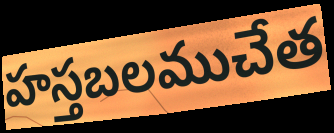
హస్తబలముచేత